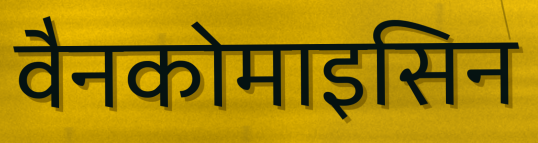
वैनकोमाइसिन